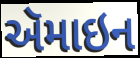
ઍમાઇન